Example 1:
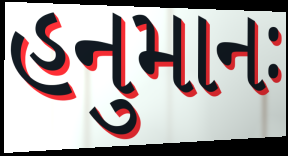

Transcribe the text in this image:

હનુમાનઃ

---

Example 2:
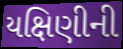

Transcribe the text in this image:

યક્ષિણીની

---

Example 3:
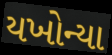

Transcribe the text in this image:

યખોન્યા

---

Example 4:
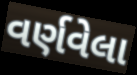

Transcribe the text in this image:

વર્ણવેલા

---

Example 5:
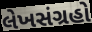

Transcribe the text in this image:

લેખસંગ્રહો